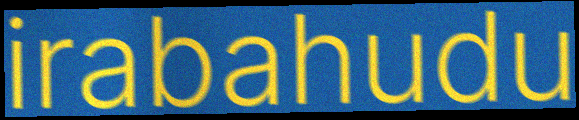
irabahudu